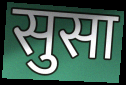
सुसा